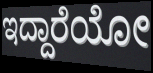
ಇದ್ದಾರೆಯೋ